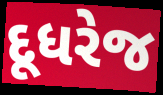
દૂધરેજ